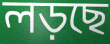
লড়ছে